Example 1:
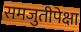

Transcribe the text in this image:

समजुतीपेक्षा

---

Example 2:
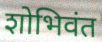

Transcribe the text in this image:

शोभिवंत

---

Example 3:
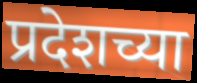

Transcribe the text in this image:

प्रदेशच्या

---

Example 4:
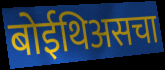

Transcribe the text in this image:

बोईथिअसचा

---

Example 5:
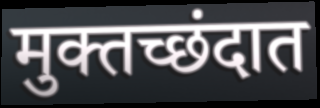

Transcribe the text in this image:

मुक्तच्छंदात